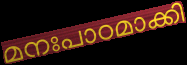
മനഃപാഠമാക്കി